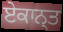
ਏਕਾਨ੍ਤ